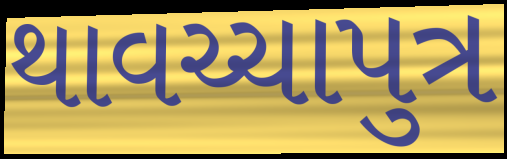
થાવચ્ચાપુત્ર